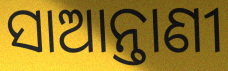
ସାଆନ୍ତାଣୀ